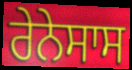
ਰੇਨੇਸਾਸ